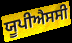
ਯੂਪੀਐਸਸੀ